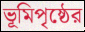
ভূমিপৃষ্ঠের